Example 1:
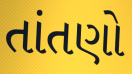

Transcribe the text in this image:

તાંતણો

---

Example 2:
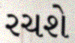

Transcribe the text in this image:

રચશે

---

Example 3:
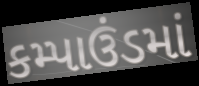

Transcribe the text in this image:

કમ્પાઉંડમાં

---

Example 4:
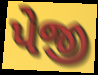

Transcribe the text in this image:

પેજી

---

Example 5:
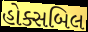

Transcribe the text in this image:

હોક્સબિલ